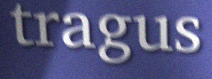
tragus